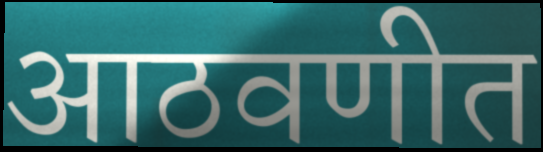
आठवणीत